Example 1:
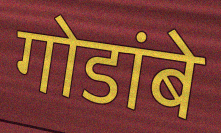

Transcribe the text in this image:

गोडांबे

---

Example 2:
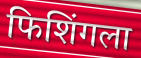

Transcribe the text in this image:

फिशिंगला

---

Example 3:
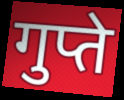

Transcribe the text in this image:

गुप्ते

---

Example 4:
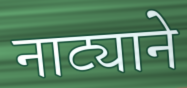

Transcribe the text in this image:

नाट्याने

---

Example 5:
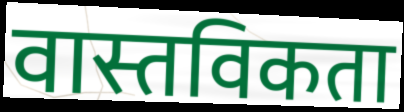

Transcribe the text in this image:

वास्तविकता